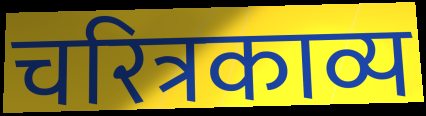
चरित्रकाव्य